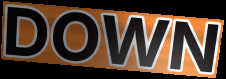
DOWN